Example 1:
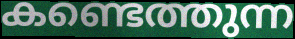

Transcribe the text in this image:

കണ്ടെത്തുന്ന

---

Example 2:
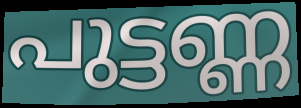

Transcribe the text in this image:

പുട്ടണ്ണ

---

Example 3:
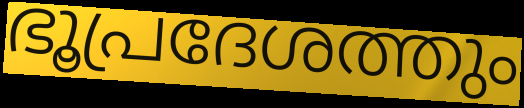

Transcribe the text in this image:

ഭൂപ്രദേശത്തും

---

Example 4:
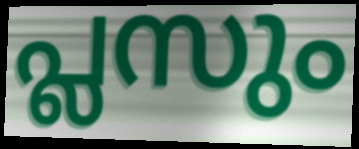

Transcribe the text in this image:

പ്ലസും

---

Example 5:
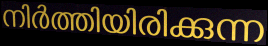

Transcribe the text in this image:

നിർത്തിയിരിക്കുന്ന